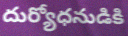
దుర్యోధనుడికి